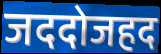
जददोजहद